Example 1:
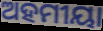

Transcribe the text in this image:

ଅହମୀୟା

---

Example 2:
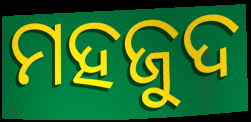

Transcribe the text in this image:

ମହଜୁଦ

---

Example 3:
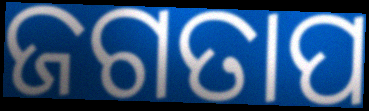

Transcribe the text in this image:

ଜଗତାପ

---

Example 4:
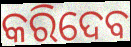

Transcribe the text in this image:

କରିଦେବ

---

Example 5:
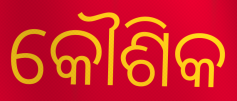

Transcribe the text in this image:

କୌଶିକ